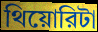
থিয়োরিটা